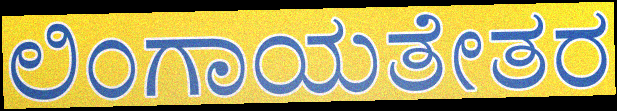
ಲಿಂಗಾಯತೇತರ